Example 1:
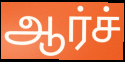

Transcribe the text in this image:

ஆர்ச்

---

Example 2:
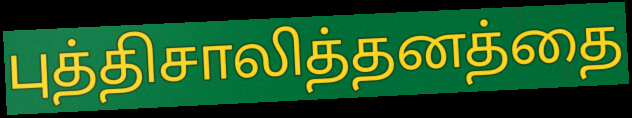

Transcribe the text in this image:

புத்திசாலித்தனத்தை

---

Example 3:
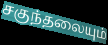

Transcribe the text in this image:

சகுந்தலையும்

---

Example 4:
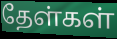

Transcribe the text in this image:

தேள்கள்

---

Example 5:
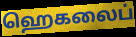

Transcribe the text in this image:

ஹெகலைப்